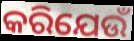
କରିଯେଉଁ